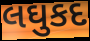
લઘુકદ